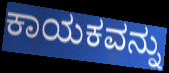
ಕಾಯಕವನ್ನು